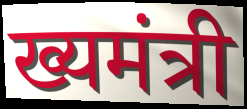
ख्यमंत्री